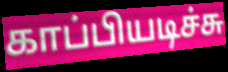
காப்பியடிச்சு